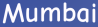
Mumbai